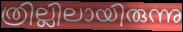
ത്രില്ലിലായിരുന്നു